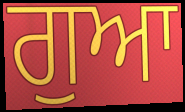
ਗੁਆ